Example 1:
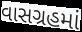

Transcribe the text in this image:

વાસગ્રહમાં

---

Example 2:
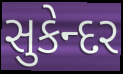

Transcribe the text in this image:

સુકેન્દર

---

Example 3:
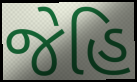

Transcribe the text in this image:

જેહિ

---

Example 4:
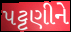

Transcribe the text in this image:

પટ્ટણીને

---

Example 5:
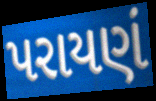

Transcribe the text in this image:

પરાયણં